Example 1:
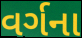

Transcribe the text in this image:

વર્ગના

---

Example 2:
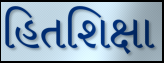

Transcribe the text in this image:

હિતશિક્ષા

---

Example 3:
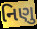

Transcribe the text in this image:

નિણુ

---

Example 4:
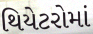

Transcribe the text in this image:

થિયેટરોમાં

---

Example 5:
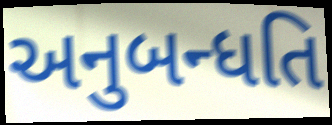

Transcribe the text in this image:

અનુબન્ધતિ